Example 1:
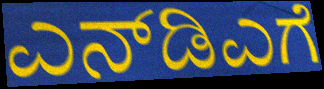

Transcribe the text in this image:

ಎನ್‌ಡಿಎಗೆ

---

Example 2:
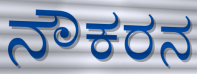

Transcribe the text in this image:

ನೌಕರನ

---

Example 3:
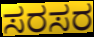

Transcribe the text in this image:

ಸರಸರ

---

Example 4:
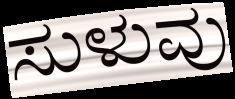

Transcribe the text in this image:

ಸುಳುವು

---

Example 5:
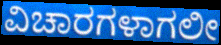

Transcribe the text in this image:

ವಿಚಾರಗಳಾಗಲೀ